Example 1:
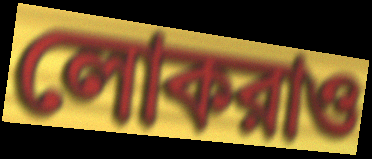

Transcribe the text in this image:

লোকরাও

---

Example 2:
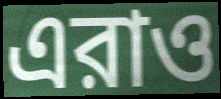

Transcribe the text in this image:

এরাও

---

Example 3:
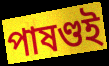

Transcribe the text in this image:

পাষণ্ডই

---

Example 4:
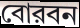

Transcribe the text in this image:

বোরবন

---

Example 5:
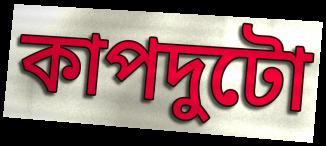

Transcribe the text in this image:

কাপদুটো